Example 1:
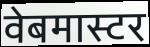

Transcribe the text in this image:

वेबमास्टर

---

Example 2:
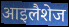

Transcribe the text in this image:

आइलैशेज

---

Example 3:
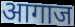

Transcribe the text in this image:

आगाज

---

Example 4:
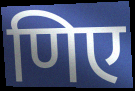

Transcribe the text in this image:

णिए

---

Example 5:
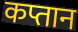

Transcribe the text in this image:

कप्तान